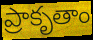
ప్రాకృతాం